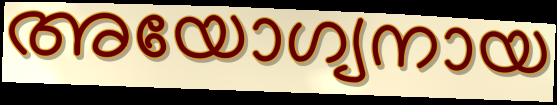
അയോഗ്യനായ